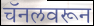
चॅनलवरून